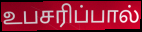
உபசரிப்பால்